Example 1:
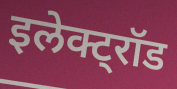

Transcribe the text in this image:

इलेक्ट्रॉड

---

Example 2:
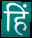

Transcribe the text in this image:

हिं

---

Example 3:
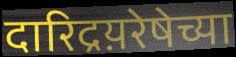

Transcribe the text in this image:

दारिद्रय़रेषेच्या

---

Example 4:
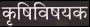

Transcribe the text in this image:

कृषिविषयक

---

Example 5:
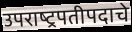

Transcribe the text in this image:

उपराष्ट्रपतीपदाचे